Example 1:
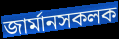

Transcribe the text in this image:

জাৰ্মানসকলক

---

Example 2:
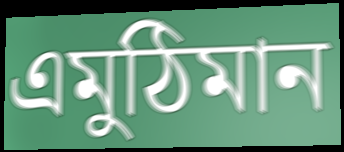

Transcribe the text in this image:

এমুঠিমান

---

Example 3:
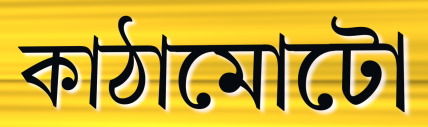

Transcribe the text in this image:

কাঠামোটো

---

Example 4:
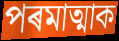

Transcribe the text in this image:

পৰমাত্মাক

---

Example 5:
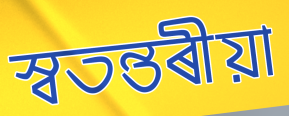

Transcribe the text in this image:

স্বতন্তৰীয়া